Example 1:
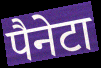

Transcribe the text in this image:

पैनेटा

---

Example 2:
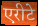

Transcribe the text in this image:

एरीटे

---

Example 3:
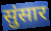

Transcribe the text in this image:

सुंसार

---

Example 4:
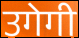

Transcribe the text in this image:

उगेगी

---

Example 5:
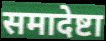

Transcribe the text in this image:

समादेष्टा